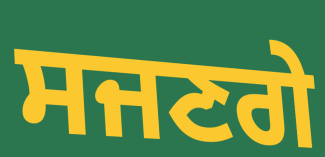
ਸਜਣਗੇ